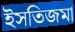
ইসতিজমা